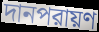
দানপরায়ণ